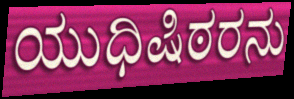
ಯುಧಿಷಿಠರನು